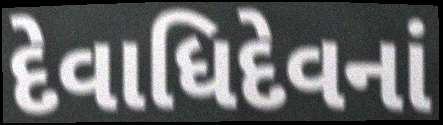
દેવાધિદેવનાં